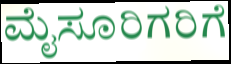
ಮೈಸೂರಿಗರಿಗೆ